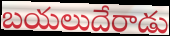
బయలుదేరాడు